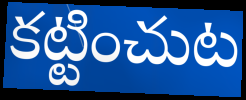
కట్టించుట